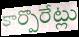
కార్పొరేట్లు